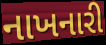
નાખનારી